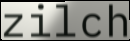
zilch